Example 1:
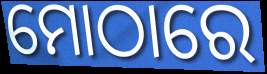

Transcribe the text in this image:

ମୋଠାରେ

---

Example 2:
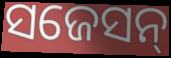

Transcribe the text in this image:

ସଜେସନ୍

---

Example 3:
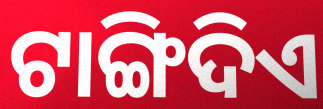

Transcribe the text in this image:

ଟାଙ୍ଗିଦିଏ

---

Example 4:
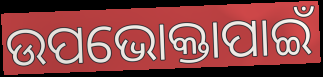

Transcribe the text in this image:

ଉପଭୋକ୍ତାପାଇଁ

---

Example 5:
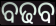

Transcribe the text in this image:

ବଢବ